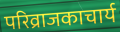
परिव्राजकाचार्य